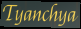
Tyanchya